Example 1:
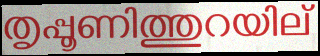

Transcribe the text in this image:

തൃപ്പൂണിത്തുറയില്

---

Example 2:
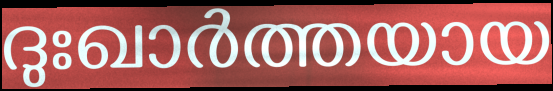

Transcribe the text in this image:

ദുഃഖാർത്തയായ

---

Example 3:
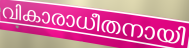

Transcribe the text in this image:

വികാരാധീതനായി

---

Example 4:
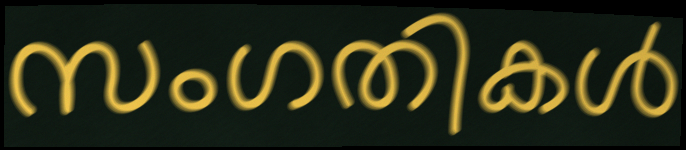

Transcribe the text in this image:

സംഗതികൾ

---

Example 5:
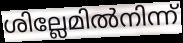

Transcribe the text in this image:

ശില്ലേമിൽനിന്ന്